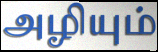
அழியும்